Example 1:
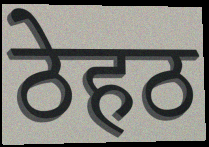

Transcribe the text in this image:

ठेहठ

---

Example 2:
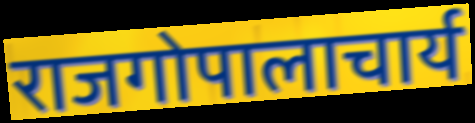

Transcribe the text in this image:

राजगोपालाचार्य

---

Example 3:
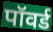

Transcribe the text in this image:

पॉवर्ड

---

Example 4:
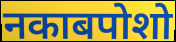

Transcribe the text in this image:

नकाबपोशो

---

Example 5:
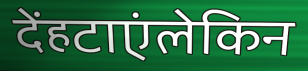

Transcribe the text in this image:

देंहटाएंलेकिन